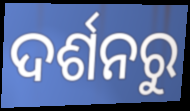
ଦର୍ଶନରୁ